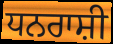
ਧਨਰਾਸ਼ੀ